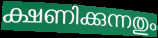
ക്ഷണിക്കുന്നതും